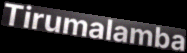
Tirumalamba